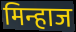
मिन्हाज